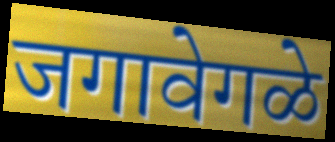
जगावेगळे